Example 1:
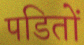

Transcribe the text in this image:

पडितों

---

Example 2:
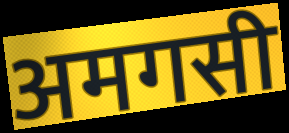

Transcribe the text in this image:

अमगसी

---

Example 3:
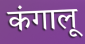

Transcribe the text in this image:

कंगालू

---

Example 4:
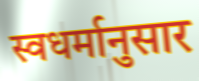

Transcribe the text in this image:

स्वधर्मानुसार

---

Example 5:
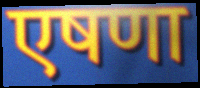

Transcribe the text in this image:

एषणा